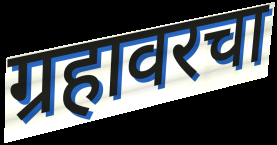
ग्रहावरचा